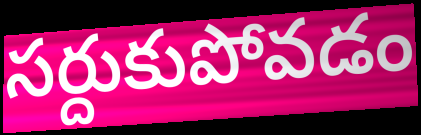
సర్దుకుపోవడం